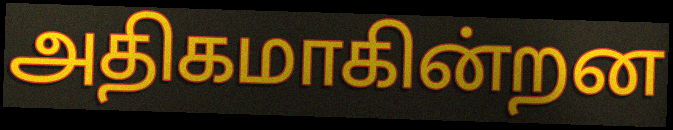
அதிகமாகின்றன